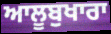
ਆਲੂਬੁਖਾਰਾ